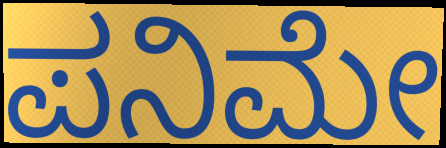
ಪನಿಮೇ